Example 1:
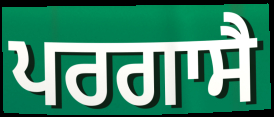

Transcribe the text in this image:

ਪਰਗਾਸੈ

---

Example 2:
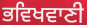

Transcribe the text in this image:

ਭਵਿਖਵਾਣੀ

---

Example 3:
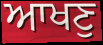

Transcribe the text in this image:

ਆਖਣੁ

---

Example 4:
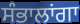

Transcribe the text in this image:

ਸੰਭਾਲਾਂਗਾ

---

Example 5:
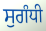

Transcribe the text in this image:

ਸੁਗੰਧੀ